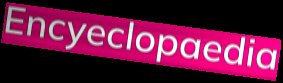
Encyeclopaedia